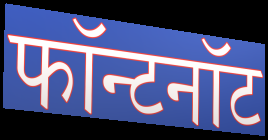
फॉन्टनॉट